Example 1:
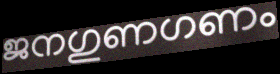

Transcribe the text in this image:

ജനഗുണഗണം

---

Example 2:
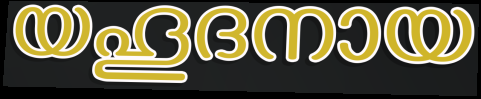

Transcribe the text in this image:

യഹൂദനായ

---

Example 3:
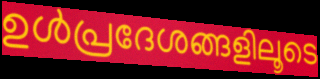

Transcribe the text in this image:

ഉൾപ്രദേശങ്ങളിലൂടെ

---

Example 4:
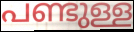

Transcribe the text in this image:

പണ്ടുള്ള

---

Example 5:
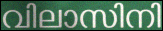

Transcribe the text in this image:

വിലാസിനി